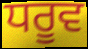
ਧਰੂਵ